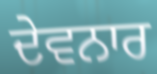
ਦੇਵਨਾਰ